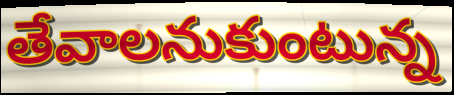
తేవాలనుకుంటున్న